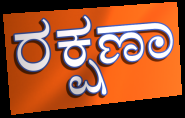
ರಕ್ಷಣಾ